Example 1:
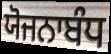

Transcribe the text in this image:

ਯੋਜਨਾਬੰਧ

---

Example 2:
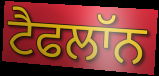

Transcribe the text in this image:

ਟੈਫਲਾੱਨ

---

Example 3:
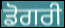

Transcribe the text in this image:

ਡੋਗਰੀ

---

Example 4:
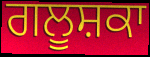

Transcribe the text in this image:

ਗਲੂਸ਼ਕਾ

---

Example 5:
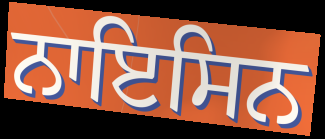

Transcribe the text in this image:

ਨਾਇਸਿਨ